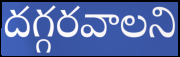
దగ్గరవాలని